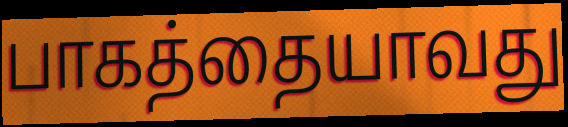
பாகத்தையாவது